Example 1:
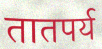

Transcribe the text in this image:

तातपर्य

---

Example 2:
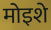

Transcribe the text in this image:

मोइशे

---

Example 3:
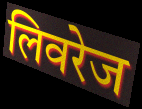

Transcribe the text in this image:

लिवरेज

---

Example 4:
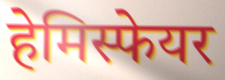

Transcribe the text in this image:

हेमिस्फेयर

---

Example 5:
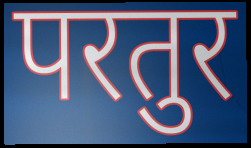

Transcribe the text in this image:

परतुर